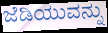
ಜೆಡಿಯುವನ್ನು